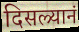
दिसल्यानं